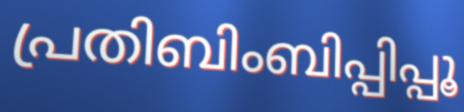
പ്രതിബിംബിപ്പിപ്പൂ